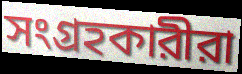
সংগ্রহকারীরা